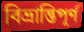
বিভ্রান্তিপূর্ণ